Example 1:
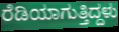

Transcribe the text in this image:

ರೆಡಿಯಾಗುತ್ತಿದ್ದಳು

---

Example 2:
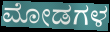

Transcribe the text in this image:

ಮೋಡಗಳ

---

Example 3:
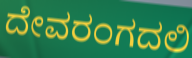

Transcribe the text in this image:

ದೇವರಂಗದಲಿ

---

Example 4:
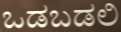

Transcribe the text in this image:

ಒಡಬಡಲಿ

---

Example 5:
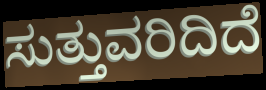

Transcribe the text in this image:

ಸುತ್ತುವರಿದಿದೆ